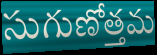
సుగుణోత్తమ